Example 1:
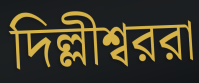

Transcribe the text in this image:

দিল্লীশ্বররা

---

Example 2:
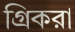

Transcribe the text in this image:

গ্রিকরা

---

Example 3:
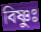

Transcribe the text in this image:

বিষ্ণুঃ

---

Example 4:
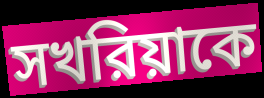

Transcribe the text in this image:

সখরিয়াকে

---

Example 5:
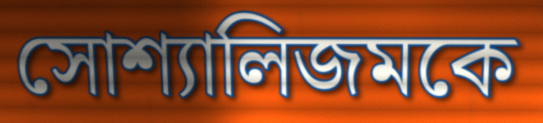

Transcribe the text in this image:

সোশ্যালিজমকে